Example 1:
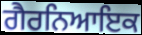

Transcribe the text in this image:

ਗੈਰਨਿਆਇਕ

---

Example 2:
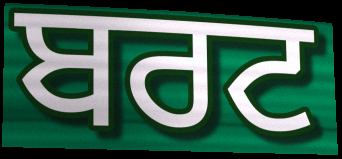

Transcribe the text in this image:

ਬਰਟ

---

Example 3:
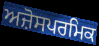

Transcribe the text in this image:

ਅਜ਼ੋਸਪਰਮਿਕ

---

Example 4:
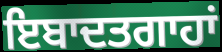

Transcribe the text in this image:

ਇਬਾਦਤਗਾਹਾਂ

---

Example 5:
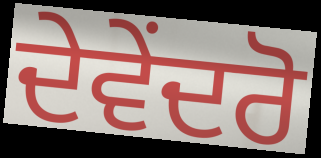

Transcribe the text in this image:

ਦੇਵੇਂਦਰੋ